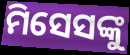
ମିସେସଙ୍କୁ